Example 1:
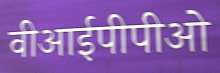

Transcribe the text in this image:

वीआईपीपीओ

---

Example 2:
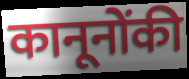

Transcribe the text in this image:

कानूनोंकी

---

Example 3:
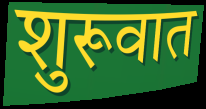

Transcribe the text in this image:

शुरूवात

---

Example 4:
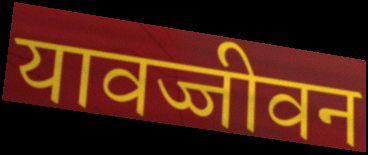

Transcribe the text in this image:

यावज्जीवन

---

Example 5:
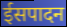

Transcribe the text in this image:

ईसपादन